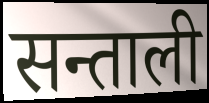
सन्ताली